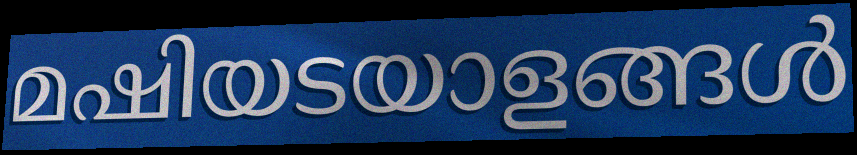
മഷിയടയാളങ്ങൾ